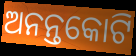
ଅନନ୍ତକୋଟି